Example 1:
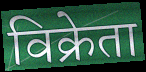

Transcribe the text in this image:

विक्रेता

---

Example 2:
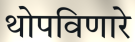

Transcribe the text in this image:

थोपविणारे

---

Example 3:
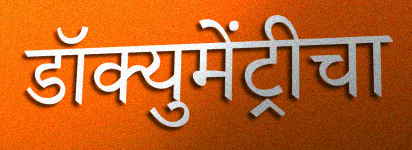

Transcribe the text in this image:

डॉक्युमेंट्रीचा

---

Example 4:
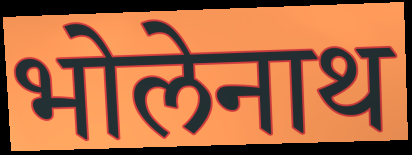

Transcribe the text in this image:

भोलेनाथ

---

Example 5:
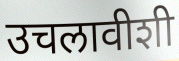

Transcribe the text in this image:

उचलावीशी